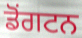
ਡੋਂਗਟਨ